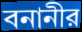
বনানীর